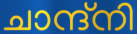
ചാന്ദ്നി